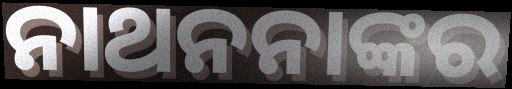
ନାଥନନାଙ୍କର